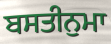
ਬਸਤੀਨੁਮਾ